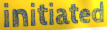
initiated